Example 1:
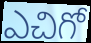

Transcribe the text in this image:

ఎచిగో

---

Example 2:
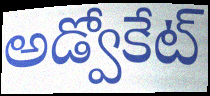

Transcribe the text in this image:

అడ్వోకేట్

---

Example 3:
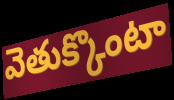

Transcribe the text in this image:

వెతుక్కొంటా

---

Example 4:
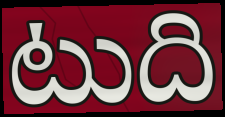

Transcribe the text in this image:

టుది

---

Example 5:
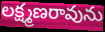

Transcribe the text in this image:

లక్ష్మణరావును